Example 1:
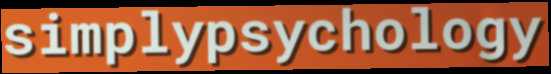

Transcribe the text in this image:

simplypsychology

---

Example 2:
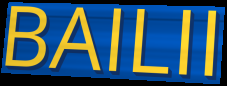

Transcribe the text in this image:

BAILII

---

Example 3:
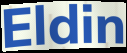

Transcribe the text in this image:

Eldin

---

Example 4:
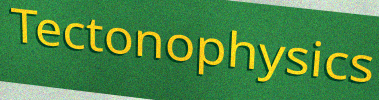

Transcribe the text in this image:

Tectonophysics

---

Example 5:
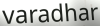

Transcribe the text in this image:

varadhar